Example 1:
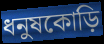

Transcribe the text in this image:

ধনুষকোড়ি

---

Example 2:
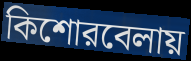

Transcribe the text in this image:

কিশোরবেলায়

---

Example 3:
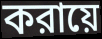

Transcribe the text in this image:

করায়ে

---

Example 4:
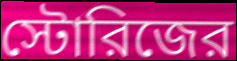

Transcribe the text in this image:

স্টোরিজের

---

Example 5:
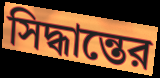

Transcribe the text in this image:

সিদ্ধান্তের